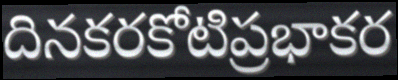
దినకరకోటిప్రభాకర